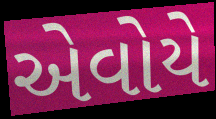
એવોયે